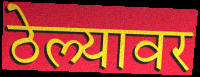
ठेल्यावर